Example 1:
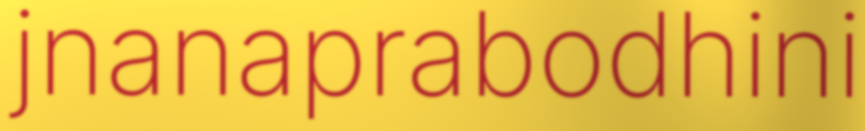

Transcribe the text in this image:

jnanaprabodhini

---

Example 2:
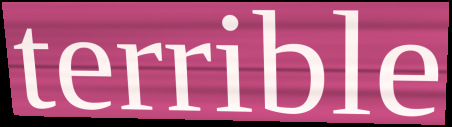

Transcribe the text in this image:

terrible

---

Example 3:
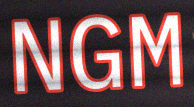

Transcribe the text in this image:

NGM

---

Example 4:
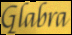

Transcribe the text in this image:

Glabra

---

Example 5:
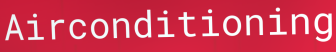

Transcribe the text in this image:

Airconditioning